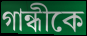
গান্ধীকে